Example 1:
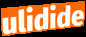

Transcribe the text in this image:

ulidide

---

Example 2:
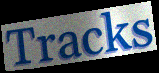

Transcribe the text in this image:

Tracks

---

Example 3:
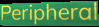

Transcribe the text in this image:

Peripheral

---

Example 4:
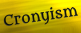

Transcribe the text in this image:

Cronyism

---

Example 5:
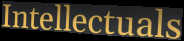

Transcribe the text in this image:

Intellectuals